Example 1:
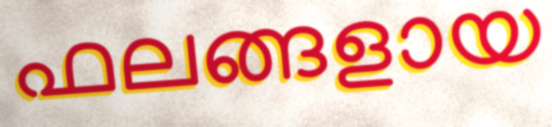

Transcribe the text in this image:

ഫലങ്ങളായ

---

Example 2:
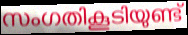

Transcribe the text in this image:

സംഗതികൂടിയുണ്ട്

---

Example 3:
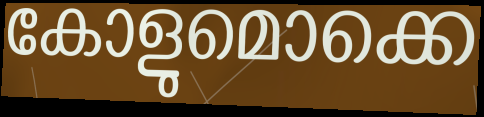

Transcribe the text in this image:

കോളുമൊക്കെ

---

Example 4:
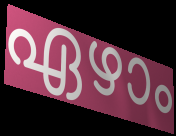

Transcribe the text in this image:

ഏഴാം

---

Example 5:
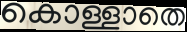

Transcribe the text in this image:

കൊള്ളാതെ